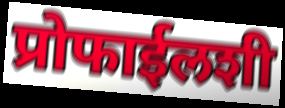
प्रोफाईलशी